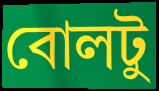
বোলটু